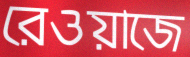
রেওয়াজে